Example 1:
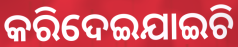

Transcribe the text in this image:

କରିଦେଇଯାଇଚି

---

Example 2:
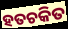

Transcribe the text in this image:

ହତଚକିତ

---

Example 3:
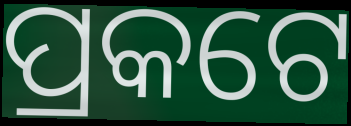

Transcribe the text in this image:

ପ୍ରକଟେ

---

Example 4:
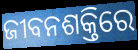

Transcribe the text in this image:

ଜୀବନଶକ୍ତିରେ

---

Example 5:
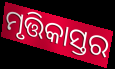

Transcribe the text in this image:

ମୃତ୍ତିକାସ୍ତର